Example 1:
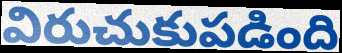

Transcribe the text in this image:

విరుచుకుపడింది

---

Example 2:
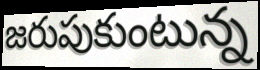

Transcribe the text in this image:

జరుపుకుంటున్న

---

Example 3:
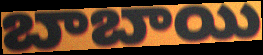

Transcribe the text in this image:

బాబాయి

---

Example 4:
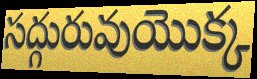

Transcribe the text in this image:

సద్గురువుయొక్క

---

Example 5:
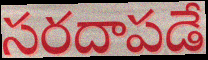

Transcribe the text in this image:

సరదాపడే